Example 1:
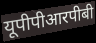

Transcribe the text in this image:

यूपीपीआरपीबी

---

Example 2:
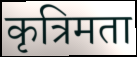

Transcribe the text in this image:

कृत्रिमता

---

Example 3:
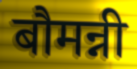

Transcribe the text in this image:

बौमन्नी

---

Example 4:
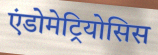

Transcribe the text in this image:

एंडोमेट्रियोसिस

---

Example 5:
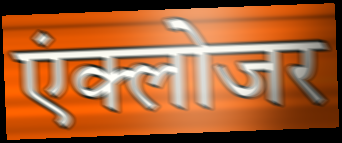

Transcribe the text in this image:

एंक्लोजर